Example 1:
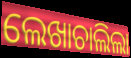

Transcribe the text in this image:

ଲେଖାଚାଲିଲା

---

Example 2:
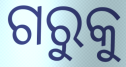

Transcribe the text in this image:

ଗରୁକୁ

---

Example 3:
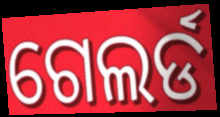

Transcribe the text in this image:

ଗେଲର୍ଡ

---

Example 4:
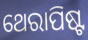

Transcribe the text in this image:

ଥେରାପିଷ୍ଟ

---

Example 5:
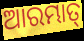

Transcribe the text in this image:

ଆରମ୍ଭାତ୍